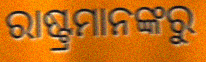
ରାଷ୍ଟ୍ରମାନଙ୍କରୁ